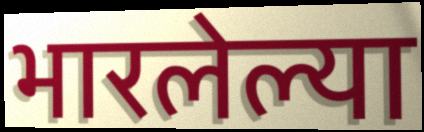
भारलेल्या